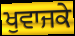
ਖੁਵਾਜਕੇ